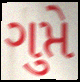
ગુપ્તે